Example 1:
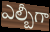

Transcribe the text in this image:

ఎల్బీగా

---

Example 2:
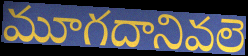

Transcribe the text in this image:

మూగదానివలె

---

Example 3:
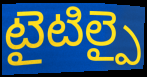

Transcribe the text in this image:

టైటిల్పై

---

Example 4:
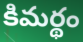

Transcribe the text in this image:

కిమర్థం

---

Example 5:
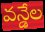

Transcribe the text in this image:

వన్డేల